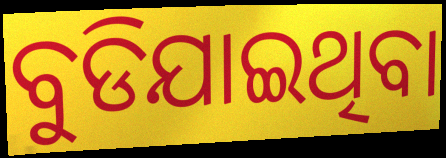
ବୁଡିଯାଇଥିବା